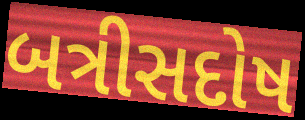
બત્રીસદોષ